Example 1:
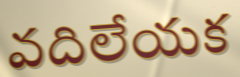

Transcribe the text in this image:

వదిలేయక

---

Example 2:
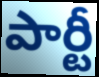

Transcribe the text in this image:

పార్టీ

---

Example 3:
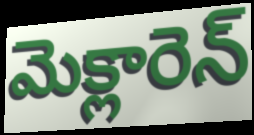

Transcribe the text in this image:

మెక్లారెన్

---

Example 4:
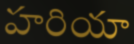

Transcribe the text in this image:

హరియా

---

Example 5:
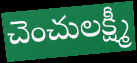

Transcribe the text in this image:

చెంచులక్ష్మీ